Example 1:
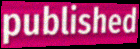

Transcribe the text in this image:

published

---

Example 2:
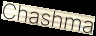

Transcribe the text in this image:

Chashma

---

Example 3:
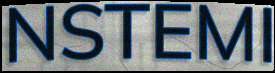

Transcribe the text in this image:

NSTEMI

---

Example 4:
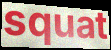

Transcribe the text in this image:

squat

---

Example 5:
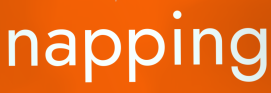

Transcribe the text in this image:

napping